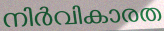
നിർവികാരത